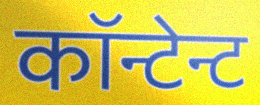
कॉन्टेन्ट